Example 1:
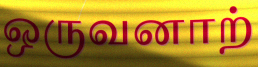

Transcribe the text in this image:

ஒருவனாற்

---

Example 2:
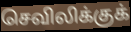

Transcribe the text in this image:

செவிலிக்குக்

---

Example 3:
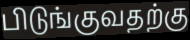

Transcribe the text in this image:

பிடுங்குவதற்கு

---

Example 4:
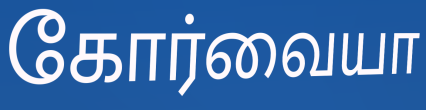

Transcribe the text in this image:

கோர்வையா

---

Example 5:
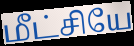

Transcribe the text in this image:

மீட்சியே